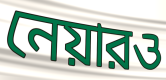
নেয়ারও